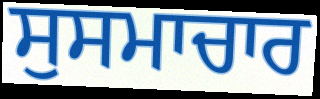
ਸੁਸਮਾਚਾਰ